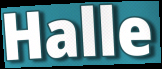
Halle